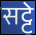
सट्टे